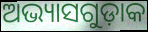
ଅଭ୍ୟାସଗୁଡ଼ାକ